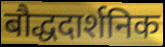
बौद्धदार्शनिक